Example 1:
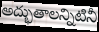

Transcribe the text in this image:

అద్భుతాలన్నిటినీ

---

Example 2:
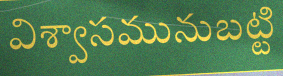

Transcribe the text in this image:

విశ్వాసమునుబట్టి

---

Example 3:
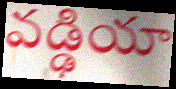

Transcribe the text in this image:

వడ్ఢియా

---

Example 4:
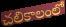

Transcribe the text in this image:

చలికాలంలో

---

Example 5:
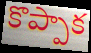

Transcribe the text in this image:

కొప్పాక